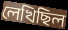
লেখিছিল